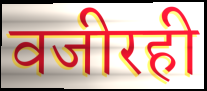
वजीरही